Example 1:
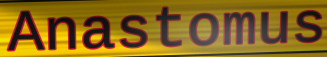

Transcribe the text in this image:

Anastomus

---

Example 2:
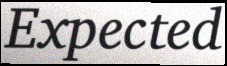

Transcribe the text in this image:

Expected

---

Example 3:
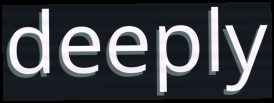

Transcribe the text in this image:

deeply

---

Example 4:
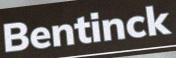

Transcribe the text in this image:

Bentinck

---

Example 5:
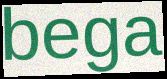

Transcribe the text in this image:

bega